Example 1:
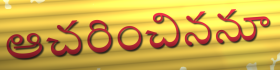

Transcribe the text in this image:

ఆచరించిననూ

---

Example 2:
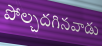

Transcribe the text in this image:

పోల్చదగినవాడు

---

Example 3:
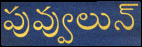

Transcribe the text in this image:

పువ్వులున్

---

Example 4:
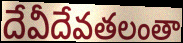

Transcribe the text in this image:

దేవీదేవతలంతా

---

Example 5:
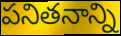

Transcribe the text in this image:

పనితనాన్ని